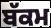
ਬੱਕਮ